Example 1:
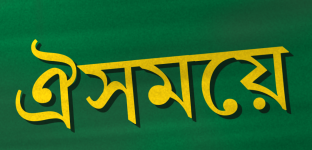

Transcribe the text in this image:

ঐসময়ে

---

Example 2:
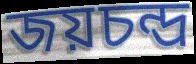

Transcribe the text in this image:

জয়চন্দ্র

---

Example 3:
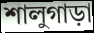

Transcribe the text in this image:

শালুগাড়া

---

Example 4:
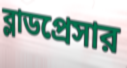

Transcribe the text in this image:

ব্লাডপ্রেসার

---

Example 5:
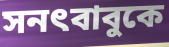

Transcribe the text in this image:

সনৎবাবুকে